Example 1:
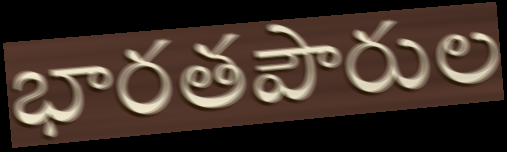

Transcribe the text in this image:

భారతపౌరుల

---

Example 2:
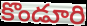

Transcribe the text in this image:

కొండూరి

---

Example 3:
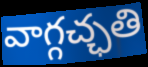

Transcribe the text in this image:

వాగ్గచ్ఛతి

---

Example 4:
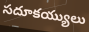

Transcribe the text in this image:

సదూకయ్యులు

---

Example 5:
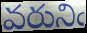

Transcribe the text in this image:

వరునిఁ